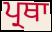
ਪ੍ਰਥਾ